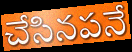
చేసినపనే